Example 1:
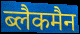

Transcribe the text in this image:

ब्लैकमैन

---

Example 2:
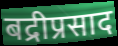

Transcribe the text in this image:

बद्रीप्रसाद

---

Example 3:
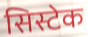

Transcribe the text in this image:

सिस्टेक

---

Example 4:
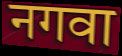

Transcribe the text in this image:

नगवा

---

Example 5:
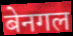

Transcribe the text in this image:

बेनगल